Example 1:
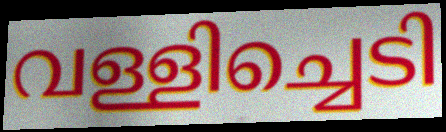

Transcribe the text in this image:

വള്ളിച്ചെടി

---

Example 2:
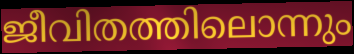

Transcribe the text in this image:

ജീവിതത്തിലൊന്നും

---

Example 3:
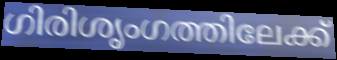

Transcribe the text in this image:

ഗിരിശൃംഗത്തിലേക്ക്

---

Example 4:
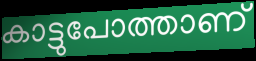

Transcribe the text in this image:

കാട്ടുപോത്താണ്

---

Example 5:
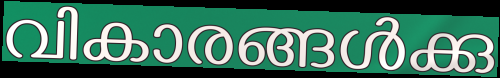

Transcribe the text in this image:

വികാരങ്ങൾക്കു